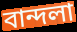
বান্দলা